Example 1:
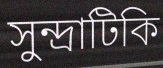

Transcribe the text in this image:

সুন্দ্রাটিকি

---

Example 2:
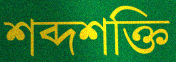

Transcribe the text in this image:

শব্দশক্তি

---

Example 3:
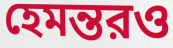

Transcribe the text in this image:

হেমন্তরও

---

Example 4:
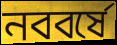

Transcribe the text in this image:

নববর্ষে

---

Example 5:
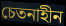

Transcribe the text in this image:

চেতনাহীন